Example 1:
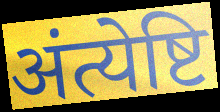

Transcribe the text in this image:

अंत्येष्टि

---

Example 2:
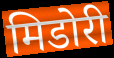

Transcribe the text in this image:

मिडोरी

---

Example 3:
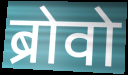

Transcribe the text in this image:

ब्रोवो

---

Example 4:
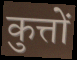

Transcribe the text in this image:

कुत्तों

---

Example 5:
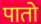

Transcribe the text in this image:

पातो